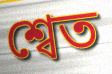
শ্বেত